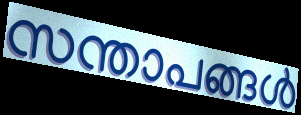
സന്താപങ്ങൾ